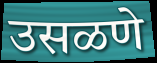
उसळणे